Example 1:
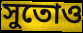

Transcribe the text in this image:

সুতোও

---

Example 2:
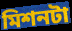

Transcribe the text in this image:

মিশনটা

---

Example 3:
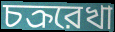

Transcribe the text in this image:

চক্ররেখা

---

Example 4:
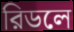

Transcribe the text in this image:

রিডলে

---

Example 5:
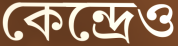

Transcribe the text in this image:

কেন্দ্রেও